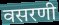
वसरणी